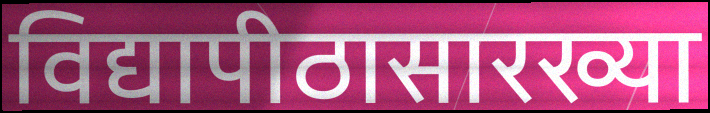
विद्यापीठासारख्या